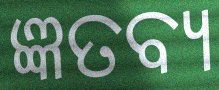
ଜ୍ଞତବ୍ୟ